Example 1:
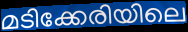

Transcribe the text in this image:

മടിക്കേരിയിലെ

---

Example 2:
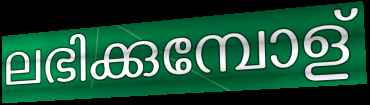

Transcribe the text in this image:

ലഭിക്കുമ്പോള്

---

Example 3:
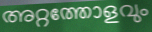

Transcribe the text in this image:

അറ്റത്തോളവും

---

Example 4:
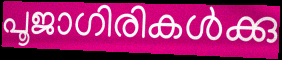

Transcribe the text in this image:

പൂജാഗിരികൾക്കു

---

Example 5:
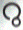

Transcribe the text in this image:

റു